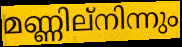
മണ്ണില്നിന്നും